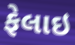
ફેલાઇ